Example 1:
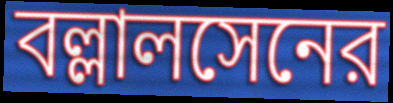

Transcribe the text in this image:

বল্লালসেনের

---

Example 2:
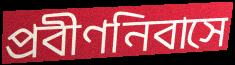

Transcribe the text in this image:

প্রবীণনিবাসে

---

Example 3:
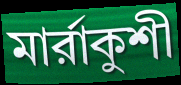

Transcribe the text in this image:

মার্রাকুশী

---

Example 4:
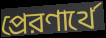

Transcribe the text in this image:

প্রেরণার্থে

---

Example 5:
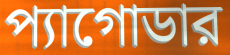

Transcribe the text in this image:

প্যাগোডার